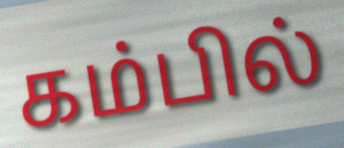
கம்பில்